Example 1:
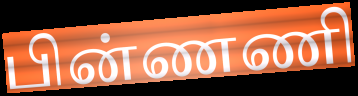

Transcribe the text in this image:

பின்ணணி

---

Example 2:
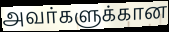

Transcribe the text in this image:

அவர்களுக்கான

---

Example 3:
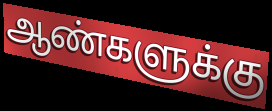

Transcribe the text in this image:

ஆண்களுக்கு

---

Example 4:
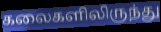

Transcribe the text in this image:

கலைகளிலிருந்து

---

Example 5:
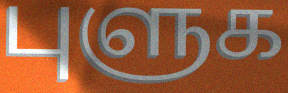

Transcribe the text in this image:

புளுக